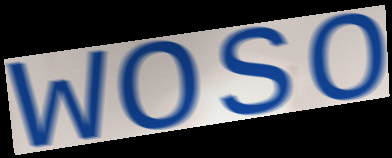
woso